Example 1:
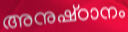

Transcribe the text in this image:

അനുഷ്‌ഠാനം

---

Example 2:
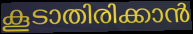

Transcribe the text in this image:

കൂടാതിരിക്കാൻ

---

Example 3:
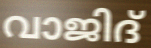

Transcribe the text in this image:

വാജിദ്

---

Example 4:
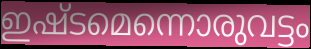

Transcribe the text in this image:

ഇഷ്ടമെന്നൊരുവട്ടം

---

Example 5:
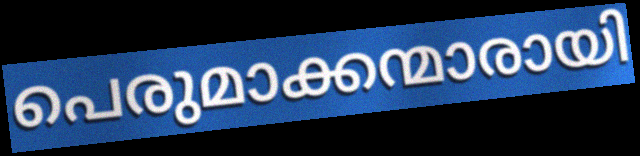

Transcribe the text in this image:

പെരുമാക്കന്മാരായി